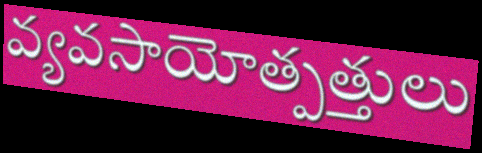
వ్యవసాయోత్పత్తులు